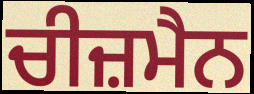
ਚੀਜ਼ਮੈਨ